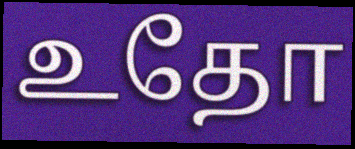
உதோ